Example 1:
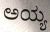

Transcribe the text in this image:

ಅಯ್ಯ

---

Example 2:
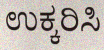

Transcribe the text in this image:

ಉಕ್ಕರಿಸಿ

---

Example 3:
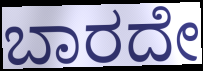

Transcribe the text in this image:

ಬಾರದೇ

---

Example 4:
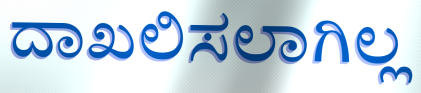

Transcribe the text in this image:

ದಾಖಲಿಸಲಾಗಿಲ್ಲ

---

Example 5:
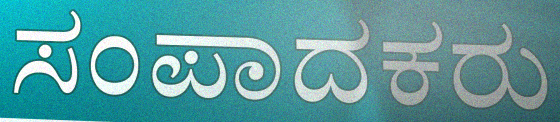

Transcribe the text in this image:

ಸಂಪಾದಕರು